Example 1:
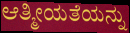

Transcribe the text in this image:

ಆತ್ಮೀಯತೆಯನ್ನು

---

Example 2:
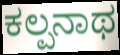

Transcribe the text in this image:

ಕಲ್ಪನಾಥ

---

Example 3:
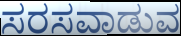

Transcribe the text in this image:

ಸರಸವಾಡುವ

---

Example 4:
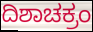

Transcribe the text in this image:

ದಿಶಾಚಕ್ರಂ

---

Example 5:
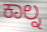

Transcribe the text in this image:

ಕಾಲ್ನ